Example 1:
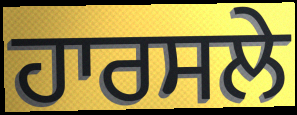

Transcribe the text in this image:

ਹਾਰਸਲੇ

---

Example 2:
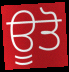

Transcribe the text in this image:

ਊਤੋ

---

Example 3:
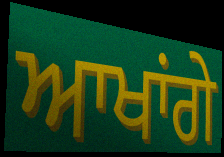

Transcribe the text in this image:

ਆਖਾਂਗੇ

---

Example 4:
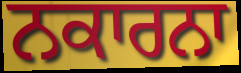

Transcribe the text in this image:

ਨਕਾਰਨਾ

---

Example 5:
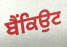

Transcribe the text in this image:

ਬੈਂਕਿਉਟ